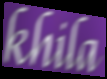
khila